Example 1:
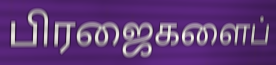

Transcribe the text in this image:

பிரஜைகளைப்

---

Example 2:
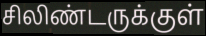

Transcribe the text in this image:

சிலிண்டருக்குள்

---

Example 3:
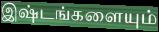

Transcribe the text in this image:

இஷ்டங்களையும்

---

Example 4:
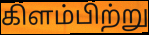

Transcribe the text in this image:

கிளம்பிற்று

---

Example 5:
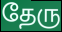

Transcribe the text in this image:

தேரு